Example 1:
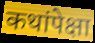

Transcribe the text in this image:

कथांपेक्षा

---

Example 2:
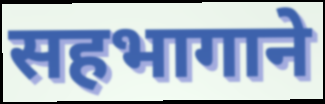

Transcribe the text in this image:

सहभागाने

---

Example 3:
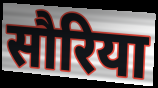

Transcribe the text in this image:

सौरिया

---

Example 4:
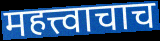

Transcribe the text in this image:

महत्त्वाचाच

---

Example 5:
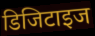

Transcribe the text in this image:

डिजिटाइज